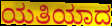
ಯತಿಯಾದ